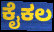
ಕೈಕಲ